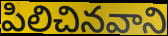
పిలిచినవాని